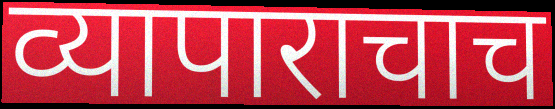
व्यापाराचाच